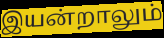
இயன்றாலும்